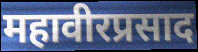
महावीरप्रसाद